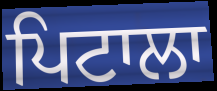
ਪਿਟਾਲਾ